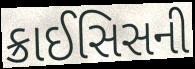
ક્રાઈસિસની